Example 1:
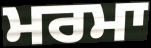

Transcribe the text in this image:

ਮਰਮਾ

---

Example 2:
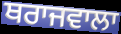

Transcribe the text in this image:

ਥਰਾਜਵਾਲਾ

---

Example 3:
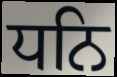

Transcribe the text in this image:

ਧਨਿ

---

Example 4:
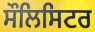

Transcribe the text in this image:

ਸੌਲਿਸਿਟਰ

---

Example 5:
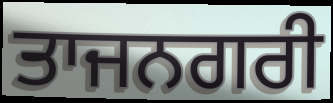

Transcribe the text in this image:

ਤਾਜਨਗਰੀ